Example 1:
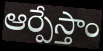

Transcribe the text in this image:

ఆర్పేస్తాం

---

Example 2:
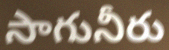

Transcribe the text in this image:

సాగునీరు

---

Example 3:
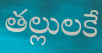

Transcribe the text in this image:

తల్లులకే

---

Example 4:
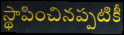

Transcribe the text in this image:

స్థాపించినప్పటికీ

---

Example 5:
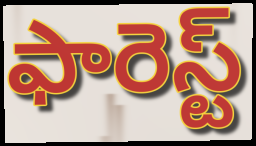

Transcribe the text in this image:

ఫారెస్ట్